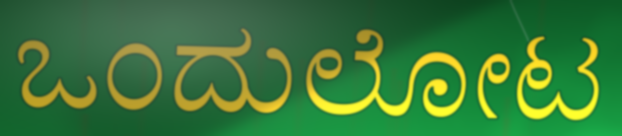
ಒಂದುಲೋಟ